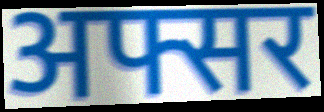
अफ्सर